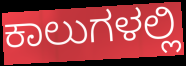
ಕಾಲುಗಳಲ್ಲಿ